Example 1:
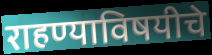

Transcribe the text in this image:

राहण्याविषयीचे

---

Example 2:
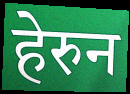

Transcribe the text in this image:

हेरुन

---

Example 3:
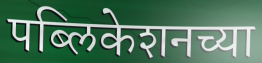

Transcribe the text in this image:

पब्लिकेशनच्या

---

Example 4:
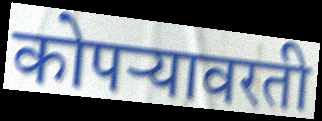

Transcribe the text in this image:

कोपऱ्यावरती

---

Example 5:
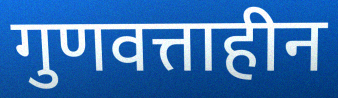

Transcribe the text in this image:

गुणवत्ताहीन